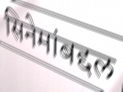
सिनेमांबद्दल